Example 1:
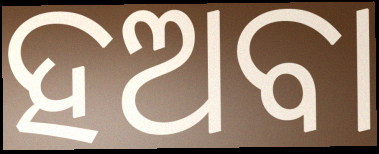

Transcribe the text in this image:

ହଅବା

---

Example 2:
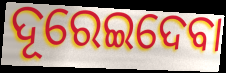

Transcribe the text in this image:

ଦୂରେଇଦେବା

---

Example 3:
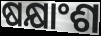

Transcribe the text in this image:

ଷକ୍ଷାଂଶ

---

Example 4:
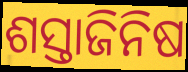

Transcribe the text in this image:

ଶସ୍ତାଜିନିଷ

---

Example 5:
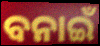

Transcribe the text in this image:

ବନାଇଁ